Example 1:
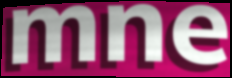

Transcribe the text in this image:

mne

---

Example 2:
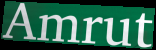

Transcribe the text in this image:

Amrut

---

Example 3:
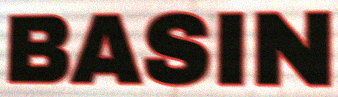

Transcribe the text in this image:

BASIN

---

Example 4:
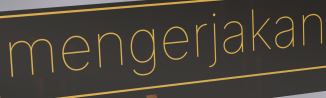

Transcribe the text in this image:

mengerjakan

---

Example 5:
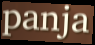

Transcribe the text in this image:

panja